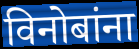
विनोबांना